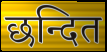
छन्दित